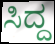
ಸಿದ್ದ